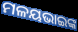
ମଳୟଭାଇଙ୍କ